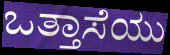
ಒತ್ತಾಸೆಯು